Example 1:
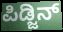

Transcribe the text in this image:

ಪಿಡ್ಜಿನ್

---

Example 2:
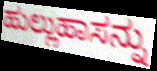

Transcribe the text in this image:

ಹುಲ್ಲುಹಾಸನ್ನು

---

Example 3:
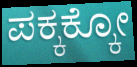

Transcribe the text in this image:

ಪಕ್ಕಕ್ಕೋ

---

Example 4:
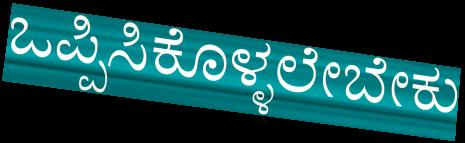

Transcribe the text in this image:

ಒಪ್ಪಿಸಿಕೊಳ್ಳಲೇಬೇಕು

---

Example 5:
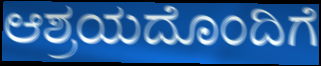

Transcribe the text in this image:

ಆಶ್ರಯದೊಂದಿಗೆ